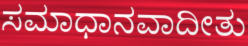
ಸಮಾಧಾನವಾದೀತು